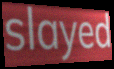
slayed